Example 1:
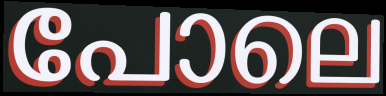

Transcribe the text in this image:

പോലെ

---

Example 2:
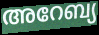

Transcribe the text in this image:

അറേബ്യ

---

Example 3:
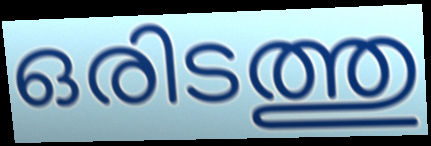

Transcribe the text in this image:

ഒരിടത്തു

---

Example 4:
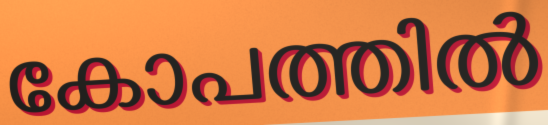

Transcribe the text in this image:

കോപത്തിൽ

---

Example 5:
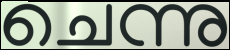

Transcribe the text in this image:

ചെന്നു